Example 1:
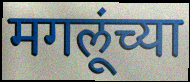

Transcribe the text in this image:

मगलूंच्या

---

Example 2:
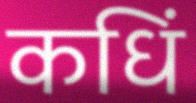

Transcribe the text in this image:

कधिं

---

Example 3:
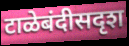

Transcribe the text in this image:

टाळेबंदीसदृश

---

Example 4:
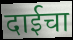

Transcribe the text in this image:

दाईचा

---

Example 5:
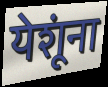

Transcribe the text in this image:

येशूंना